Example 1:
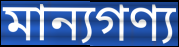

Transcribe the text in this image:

মান্যগণ্য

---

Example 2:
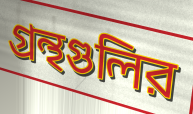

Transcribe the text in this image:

গ্রন্থগুলির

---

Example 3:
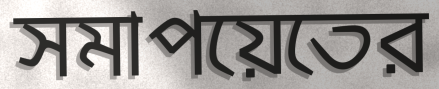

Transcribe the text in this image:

সমাপয়েতের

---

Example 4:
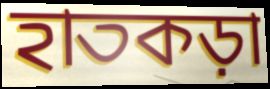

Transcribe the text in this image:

হাতকড়া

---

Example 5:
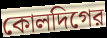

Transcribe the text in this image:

কোলদিগের